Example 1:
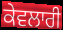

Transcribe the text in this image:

ਕੇਵਲਾਰੀ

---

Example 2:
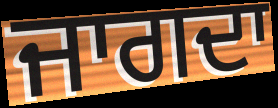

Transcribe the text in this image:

ਜਾਗਦਾ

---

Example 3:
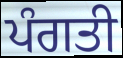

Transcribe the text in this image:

ਪੰਗਤੀ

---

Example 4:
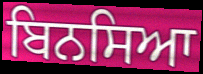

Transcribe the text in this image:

ਬਿਨਸਿਆ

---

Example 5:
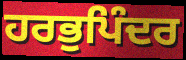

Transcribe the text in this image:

ਹਰਭੁਪਿੰਦਰ